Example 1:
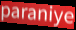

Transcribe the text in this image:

paraniye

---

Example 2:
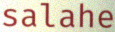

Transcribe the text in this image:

salahe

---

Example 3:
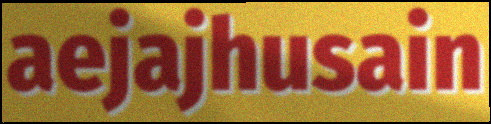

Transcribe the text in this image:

aejajhusain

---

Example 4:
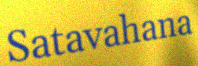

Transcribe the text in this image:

Satavahana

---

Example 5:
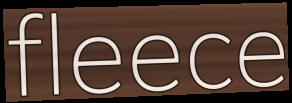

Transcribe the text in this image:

fleece